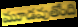
మూడవుతోంది